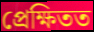
প্ৰেক্ষিতত